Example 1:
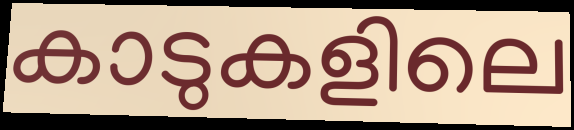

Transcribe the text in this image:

കാടുകളിലെ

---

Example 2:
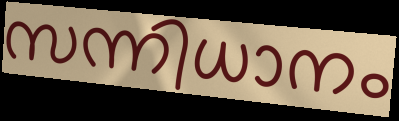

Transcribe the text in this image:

സന്നിധാനം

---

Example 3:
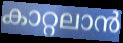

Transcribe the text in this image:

കാറ്റലാൻ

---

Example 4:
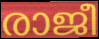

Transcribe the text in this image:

രാജീ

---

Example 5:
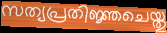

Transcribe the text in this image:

സത്യപ്രതിജ്ഞചെയ്തു